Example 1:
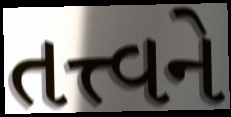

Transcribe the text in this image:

તત્ત્વને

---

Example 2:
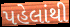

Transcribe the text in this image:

પહેલાંથી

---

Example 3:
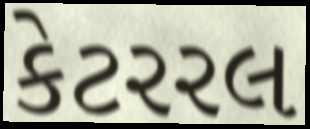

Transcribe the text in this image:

કેટરરલ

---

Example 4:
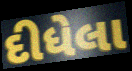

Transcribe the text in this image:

દીધેલા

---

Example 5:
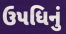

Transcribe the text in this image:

ઉપધિનું